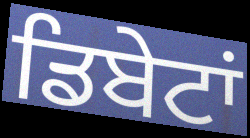
ਡਿਬੇਟਾਂ